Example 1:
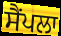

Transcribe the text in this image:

ਸੈਂਪਲਾ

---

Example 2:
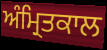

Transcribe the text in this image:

ਅੰਮ੍ਰਿਤਕਾਲ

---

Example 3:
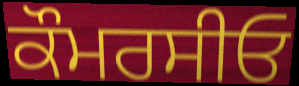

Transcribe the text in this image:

ਕੌਮਰਸੀਓ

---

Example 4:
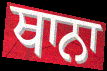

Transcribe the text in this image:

ਥਾਨਾ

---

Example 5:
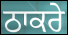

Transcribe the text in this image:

ਠਾਕਰੇ